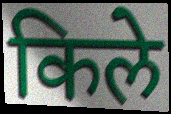
किले